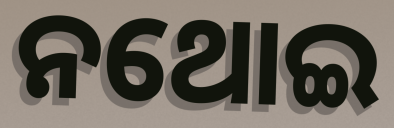
ନଥୋଇ